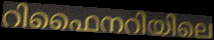
റിഫൈനറിയിലെ